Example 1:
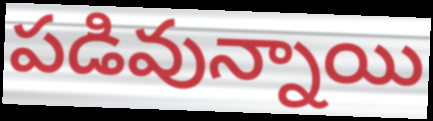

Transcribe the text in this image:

పడివున్నాయి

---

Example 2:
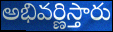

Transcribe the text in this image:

అభివర్ణిస్తారు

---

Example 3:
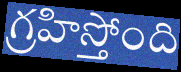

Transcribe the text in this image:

గ్రహిస్తోంది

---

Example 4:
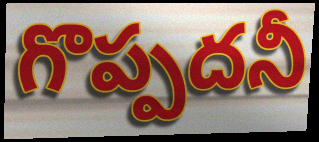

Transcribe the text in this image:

గొప్పదనీ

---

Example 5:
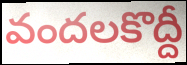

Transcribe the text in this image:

వందలకొద్దీ